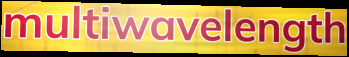
multiwavelength